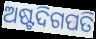
ଅଷ୍ଟଦିଗପତି